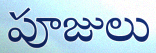
పూజులు